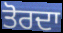
ਤੋਰਦਾ